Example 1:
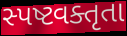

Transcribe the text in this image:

સ્પષ્ટવક્તૃતા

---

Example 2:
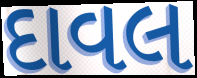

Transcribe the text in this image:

દાવલ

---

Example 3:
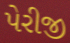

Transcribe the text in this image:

પેરીજી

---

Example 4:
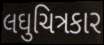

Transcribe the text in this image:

લઘુચિત્રકાર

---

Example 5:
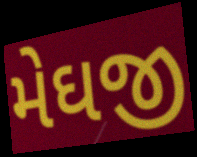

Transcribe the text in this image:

મેઘજી